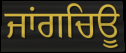
ਜਾਂਗਚਿਊ